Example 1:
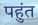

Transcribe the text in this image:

पहुंत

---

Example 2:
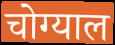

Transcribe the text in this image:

चोग्याल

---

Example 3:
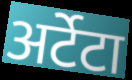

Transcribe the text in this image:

अर्टेटा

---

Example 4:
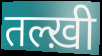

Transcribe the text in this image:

तल्ख़ी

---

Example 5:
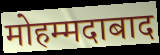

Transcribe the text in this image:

मोहम्मदाबाद